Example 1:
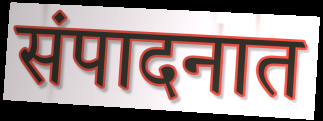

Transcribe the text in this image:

संपादनात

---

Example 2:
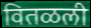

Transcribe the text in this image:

वितळली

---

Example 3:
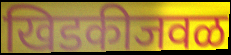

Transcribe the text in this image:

खिडकीजवळ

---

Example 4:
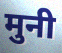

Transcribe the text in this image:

मुनी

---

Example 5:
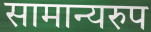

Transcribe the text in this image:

सामान्यरुप